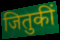
जितुकीं